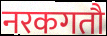
नरकगतौ